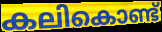
കലികൊണ്ട്